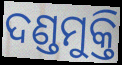
ଦଣ୍ଡମୁକ୍ତି